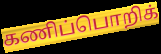
கணிப்பொறிக்